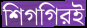
শিগগিরই